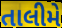
તાલીમે